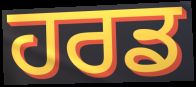
ਹਰਡ